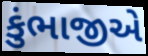
કુંભાજીએ